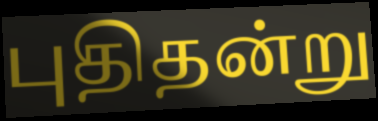
புதிதன்று